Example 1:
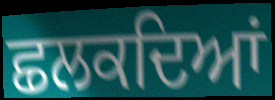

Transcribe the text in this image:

ਛਲਕਦਿਆਂ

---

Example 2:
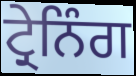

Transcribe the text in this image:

ਟ੍ਰੇਨਿੰਗ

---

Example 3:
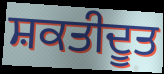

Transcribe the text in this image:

ਸ਼ਕਤੀਦੂਤ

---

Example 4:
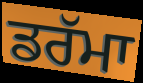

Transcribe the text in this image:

ਡਰੱਮਾ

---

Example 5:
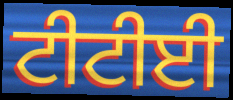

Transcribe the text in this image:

ਟੀਟੀਈ